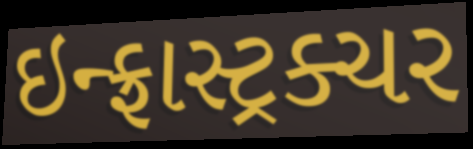
ઇન્ફ્રાસ્ટ્રક્ચર